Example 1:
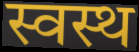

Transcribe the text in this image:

स्वस्थ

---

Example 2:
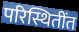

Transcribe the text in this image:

परिस्थितींत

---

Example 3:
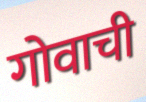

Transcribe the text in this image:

गोवाची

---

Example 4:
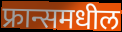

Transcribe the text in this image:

फ्रान्समधील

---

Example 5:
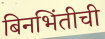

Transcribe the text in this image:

बिनभिंतीची